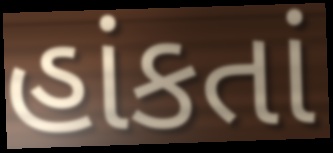
હાંકતાં